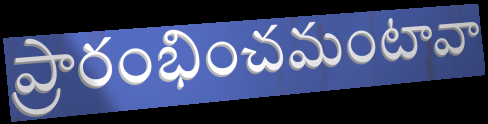
ప్రారంభించమంటావా